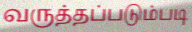
வருத்தப்படும்படி